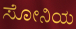
ಸೋನಿಯ